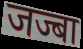
जज्बा